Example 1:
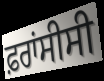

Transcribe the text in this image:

ਫ਼ਰਾਂਸੀਸੀ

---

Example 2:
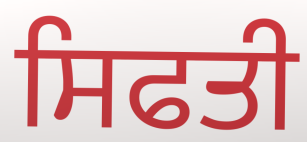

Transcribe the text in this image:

ਸਿਫਤੀ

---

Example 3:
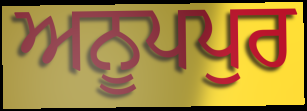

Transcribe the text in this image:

ਅਨੂਪਪੁਰ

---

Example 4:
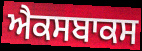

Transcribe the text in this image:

ਐਕਸਬਾਕਸ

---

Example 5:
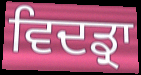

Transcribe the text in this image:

ਵਿਦਡ੍ਰਾ